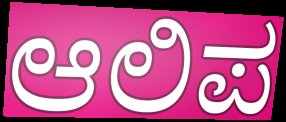
ಆಲಿಪ